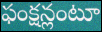
ఫంక్షన్లంటూ